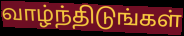
வாழ்ந்திடுங்கள்